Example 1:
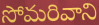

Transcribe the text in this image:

సోమరివాని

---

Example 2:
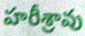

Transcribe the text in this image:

హరీశ్రావు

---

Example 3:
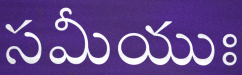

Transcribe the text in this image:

సమీయుః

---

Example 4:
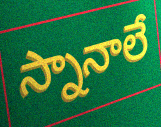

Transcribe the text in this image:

స్నానాలే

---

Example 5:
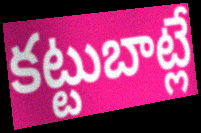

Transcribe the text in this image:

కట్టుబాట్లే